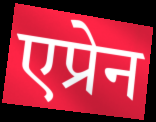
एप्रेन